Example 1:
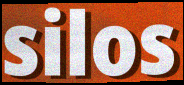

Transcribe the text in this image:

silos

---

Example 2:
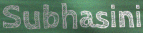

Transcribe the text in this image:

Subhasini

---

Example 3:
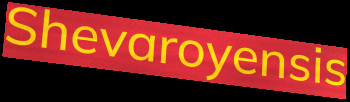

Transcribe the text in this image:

Shevaroyensis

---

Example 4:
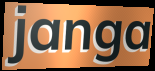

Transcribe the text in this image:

janga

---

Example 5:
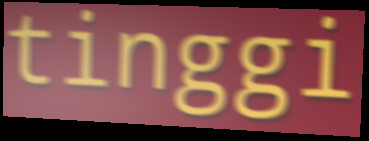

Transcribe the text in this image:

tinggi